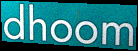
dhoom